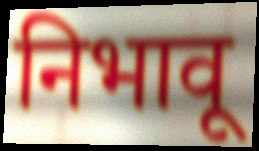
निभावू